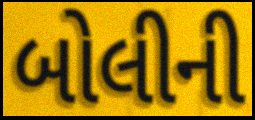
બોલીની